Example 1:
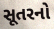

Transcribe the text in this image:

સૂતરનો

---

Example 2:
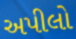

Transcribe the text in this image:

અપીલો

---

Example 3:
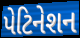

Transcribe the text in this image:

પેટિનેશન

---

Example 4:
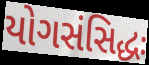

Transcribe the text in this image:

યોગસંસિદ્ધઃ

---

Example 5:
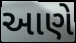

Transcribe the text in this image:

આણે